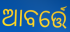
ଆବର୍ତ୍ତେ